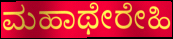
ಮಹಾಥೇರೇಹಿ